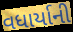
વધાર્યાની